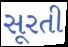
સૂરતી